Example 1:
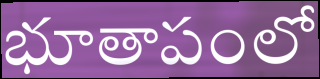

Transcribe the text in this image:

భూతాపంలో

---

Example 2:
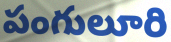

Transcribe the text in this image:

పంగులూరి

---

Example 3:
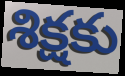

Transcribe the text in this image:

శిక్షకు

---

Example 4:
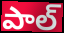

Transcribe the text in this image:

పాల్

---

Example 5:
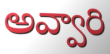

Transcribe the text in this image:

అవ్వారి